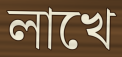
লাখে